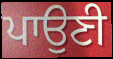
ਪਾਉਣੀ